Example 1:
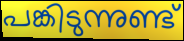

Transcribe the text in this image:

പങ്കിടുന്നുണ്ട്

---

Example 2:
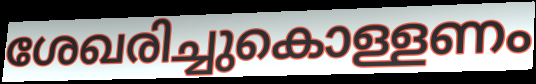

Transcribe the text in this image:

ശേഖരിച്ചുകൊള്ളണം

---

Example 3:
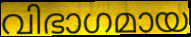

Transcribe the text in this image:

വിഭാഗമായ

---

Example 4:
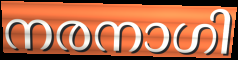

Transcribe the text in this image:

നരനാഗി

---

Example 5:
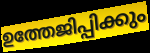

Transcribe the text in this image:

ഉത്തേജിപ്പിക്കും